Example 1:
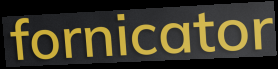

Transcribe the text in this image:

fornicator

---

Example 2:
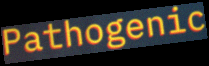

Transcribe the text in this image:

Pathogenic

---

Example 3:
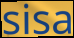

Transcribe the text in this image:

sisa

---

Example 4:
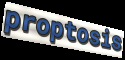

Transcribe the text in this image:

proptosis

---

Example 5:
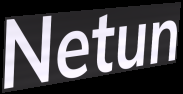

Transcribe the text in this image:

Netun